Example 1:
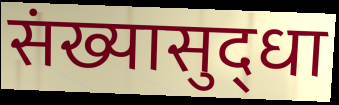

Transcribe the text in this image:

संख्यासुद्धा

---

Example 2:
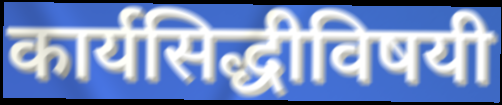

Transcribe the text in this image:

कार्यसिद्धीविषयी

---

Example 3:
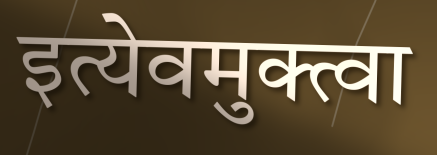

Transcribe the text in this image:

इत्येवमुक्त्वा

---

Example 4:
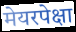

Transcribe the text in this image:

मेयरपेक्षा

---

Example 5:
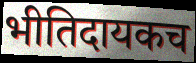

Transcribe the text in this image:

भीतिदायकच